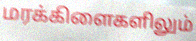
மரக்கிளைகளிலும்